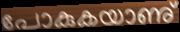
പോകുകയാണു്